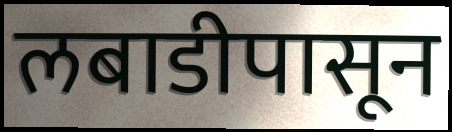
लबाडीपासून